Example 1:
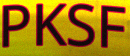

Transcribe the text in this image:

PKSF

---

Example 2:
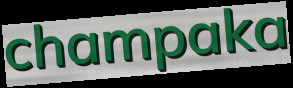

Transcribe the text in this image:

champaka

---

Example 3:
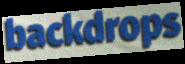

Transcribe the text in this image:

backdrops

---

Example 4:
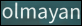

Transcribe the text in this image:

olmayan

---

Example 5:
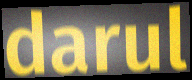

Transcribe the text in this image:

darul